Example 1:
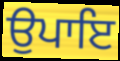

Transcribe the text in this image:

ਉਪਾਇ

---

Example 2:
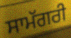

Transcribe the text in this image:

ਸਾਮੱਗਰੀ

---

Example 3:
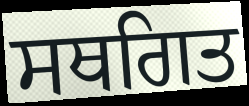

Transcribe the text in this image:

ਸਥਗਿਤ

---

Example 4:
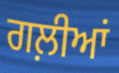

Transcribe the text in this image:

ਗਲ਼ੀਆਂ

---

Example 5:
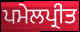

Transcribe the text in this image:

ਪਮੇਲਪ੍ਰੀਤ